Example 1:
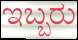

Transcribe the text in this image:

ಇಬ್ಬರು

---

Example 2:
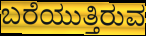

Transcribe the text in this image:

ಬರೆಯುತ್ತಿರುವ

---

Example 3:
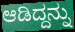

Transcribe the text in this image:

ಆಡಿದ್ದನ್ನು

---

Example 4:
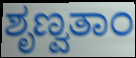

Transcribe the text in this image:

ಶೃಣ್ವತಾಂ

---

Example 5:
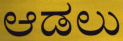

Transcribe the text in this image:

ಆಡಲು